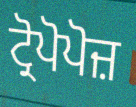
ਟ੍ਰੋਪੋਪੋਜ਼